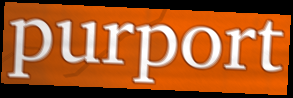
purport